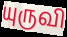
யுருவி